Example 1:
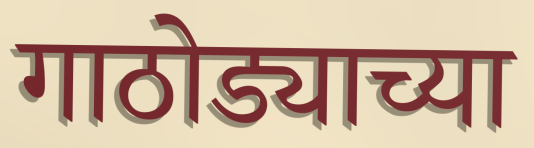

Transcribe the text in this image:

गाठोड्याच्या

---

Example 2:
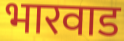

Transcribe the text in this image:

भारवाड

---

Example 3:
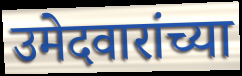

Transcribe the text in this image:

उमेदवारांच्या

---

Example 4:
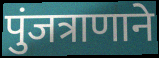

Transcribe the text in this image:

पुंजत्राणाने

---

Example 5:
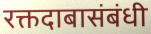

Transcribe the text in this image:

रक्तदाबासंबंधी